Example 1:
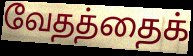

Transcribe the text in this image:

வேதத்தைக்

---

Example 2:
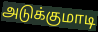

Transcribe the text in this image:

அடுக்குமாடி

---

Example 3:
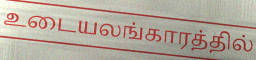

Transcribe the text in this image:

உடையலங்காரத்தில்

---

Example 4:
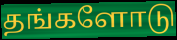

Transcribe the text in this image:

தங்களோடு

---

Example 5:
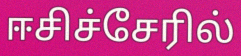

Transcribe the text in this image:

ஈசிச்சேரில்